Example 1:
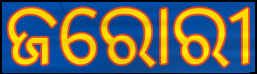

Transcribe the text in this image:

ଜରୋରୀ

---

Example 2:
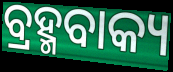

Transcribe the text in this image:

ବ୍ରହ୍ମବାକ୍ୟ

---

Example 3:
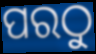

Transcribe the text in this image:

ପରଠୁ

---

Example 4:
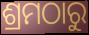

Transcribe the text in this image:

ଶ୍ରମଠାରୁ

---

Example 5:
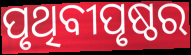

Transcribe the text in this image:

ପୃଥିବୀପୃଷ୍ଠର